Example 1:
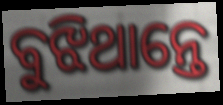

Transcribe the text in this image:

ବୁଝିଥାନ୍ତେ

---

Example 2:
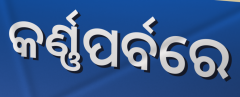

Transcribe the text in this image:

କର୍ଣ୍ଣପର୍ବରେ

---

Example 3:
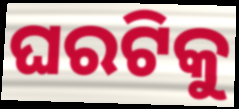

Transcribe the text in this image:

ଘରଟିକୁ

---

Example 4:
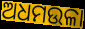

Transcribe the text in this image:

ଅଧମଉଳା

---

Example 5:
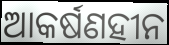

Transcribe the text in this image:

ଆକର୍ଷଣହୀନ